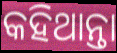
କହିଥାନ୍ତା